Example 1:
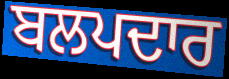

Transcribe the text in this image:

ਬਲਪਦਾਰ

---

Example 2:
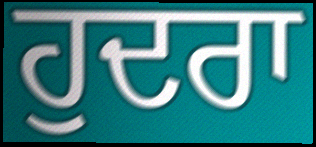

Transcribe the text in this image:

ਹੁਦਰਾ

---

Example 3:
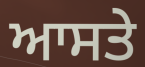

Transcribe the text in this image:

ਆਸਤੇ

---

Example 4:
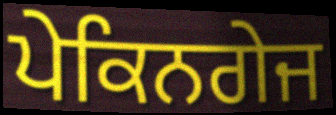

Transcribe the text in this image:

ਪੇਕਿਨਗੇਜ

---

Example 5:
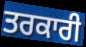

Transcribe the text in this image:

ਤਰਕਾਰੀ